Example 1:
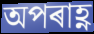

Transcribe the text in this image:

অপৰাহ্ণ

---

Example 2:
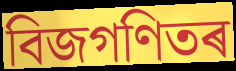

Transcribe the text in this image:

বিজগণিতৰ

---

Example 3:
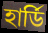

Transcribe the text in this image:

হাৰ্ডি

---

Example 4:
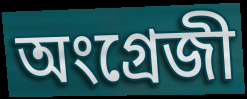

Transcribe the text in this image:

অংগ্ৰেজী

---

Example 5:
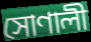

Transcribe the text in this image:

সোণালী